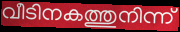
വീടിനകത്തുനിന്ന്